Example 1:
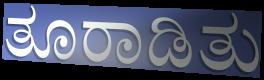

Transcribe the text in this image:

ತೂರಾಡಿತು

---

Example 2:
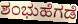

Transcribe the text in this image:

ಶಂಭುಹೆಗಡೆ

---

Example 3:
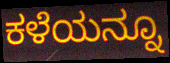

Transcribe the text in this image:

ಕಳೆಯನ್ನೂ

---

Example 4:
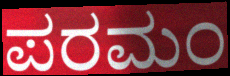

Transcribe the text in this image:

ಪರಮಂ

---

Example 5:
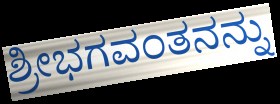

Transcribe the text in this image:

ಶ್ರೀಭಗವಂತನನ್ನು